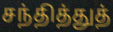
சந்தித்துத்